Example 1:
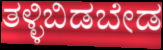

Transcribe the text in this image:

ತಳ್ಳಿಬಿಡಬೇಡ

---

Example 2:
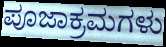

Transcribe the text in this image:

ಪೂಜಾಕ್ರಮಗಳು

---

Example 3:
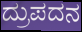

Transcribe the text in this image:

ದ್ರುಪದನ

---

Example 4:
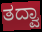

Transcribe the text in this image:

ತದ್ವಾ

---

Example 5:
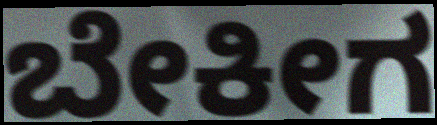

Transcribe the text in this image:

ಬೇಕೀಗ